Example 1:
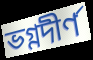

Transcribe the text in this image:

ভগ্নদীর্ণ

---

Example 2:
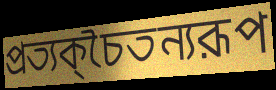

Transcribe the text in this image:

প্রত্যক্‌চৈতন্যরূপ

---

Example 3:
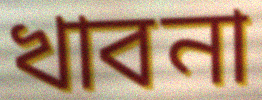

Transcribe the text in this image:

খাবনা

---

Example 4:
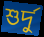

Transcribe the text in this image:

শুর্দু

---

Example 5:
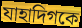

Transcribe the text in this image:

যাহাদিগকে